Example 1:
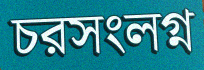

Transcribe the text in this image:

চরসংলগ্ন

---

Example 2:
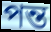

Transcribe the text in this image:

পন্ত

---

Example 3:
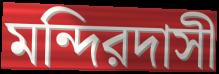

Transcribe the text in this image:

মন্দিরদাসী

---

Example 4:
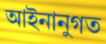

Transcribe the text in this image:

আইনানুগত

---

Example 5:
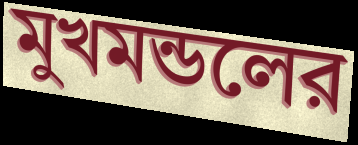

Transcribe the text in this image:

মুখমন্ডলের